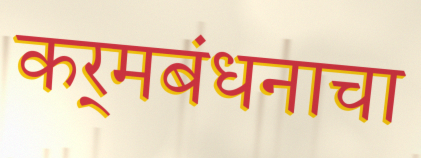
कर्मबंधनाचा